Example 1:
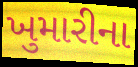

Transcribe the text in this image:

ખુમારીના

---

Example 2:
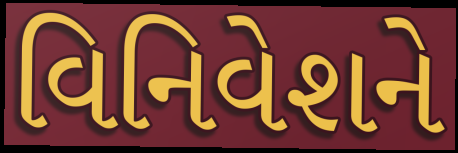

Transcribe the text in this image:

વિનિવેશને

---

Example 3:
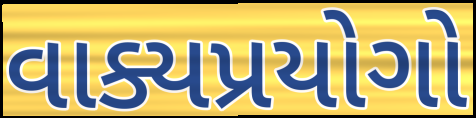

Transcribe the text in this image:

વાક્યપ્રયોગો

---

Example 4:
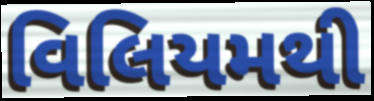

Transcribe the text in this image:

વિલિયમથી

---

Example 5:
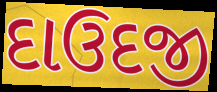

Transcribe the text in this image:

દાઉદજી